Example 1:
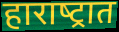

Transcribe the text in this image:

हाराष्ट्रात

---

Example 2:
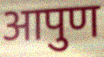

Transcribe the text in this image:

आपुण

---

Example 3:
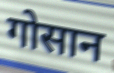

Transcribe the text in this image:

गोसान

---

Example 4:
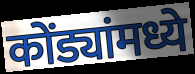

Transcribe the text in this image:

कोंड्यांमध्ये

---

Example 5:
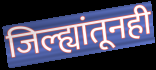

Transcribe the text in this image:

जिल्ह्यांतूनही